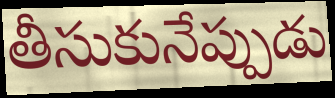
తీసుకునేప్పుడు